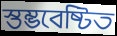
স্তম্ভবেষ্টিত